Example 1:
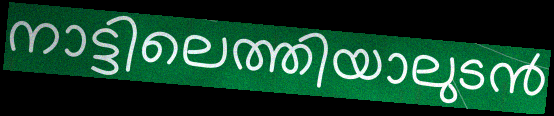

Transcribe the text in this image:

നാട്ടിലെത്തിയാലുടൻ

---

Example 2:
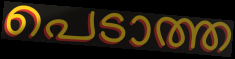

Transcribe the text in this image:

പെടാത്ത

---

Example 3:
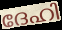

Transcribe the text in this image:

ദേഹി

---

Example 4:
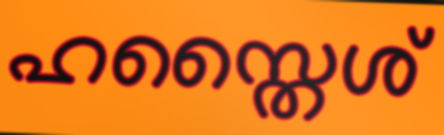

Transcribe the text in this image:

ഹസ്തൈശ്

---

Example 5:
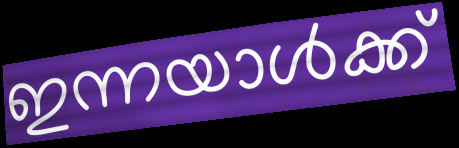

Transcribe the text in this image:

ഇന്നയാൾക്ക്